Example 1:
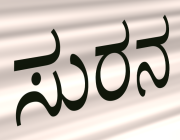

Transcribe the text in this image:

ಸುರನ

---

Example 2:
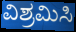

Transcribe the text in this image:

ವಿಶ್ರಮಿಸಿ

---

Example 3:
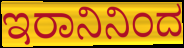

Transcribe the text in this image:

ಇರಾನಿನಿಂದ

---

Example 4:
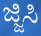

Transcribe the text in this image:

ಜ್ಜಿಸಿ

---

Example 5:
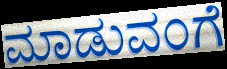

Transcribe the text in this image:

ಮಾಡುವಂಗೆ